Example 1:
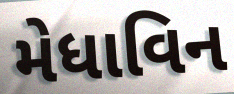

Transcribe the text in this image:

મેધાવિન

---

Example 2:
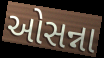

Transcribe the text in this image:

ઓસન્ના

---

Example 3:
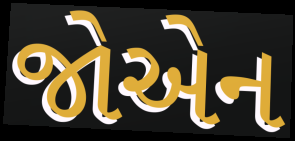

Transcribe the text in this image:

જોએન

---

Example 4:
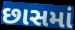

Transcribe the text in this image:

છાસમાં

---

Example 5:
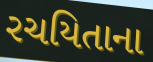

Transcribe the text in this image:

રચયિતાના